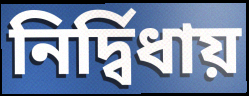
নির্দ্বিধায়